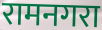
रामनगरा